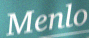
Menlo